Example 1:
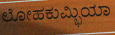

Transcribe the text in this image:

ಲೋಹಕುಮ್ಭಿಯಾ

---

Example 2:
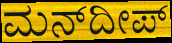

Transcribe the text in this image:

ಮನ್‍ದೀಪ್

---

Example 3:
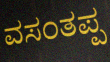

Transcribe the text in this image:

ವಸಂತಪ್ಪ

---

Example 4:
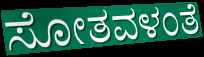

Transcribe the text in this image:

ಸೋತವಳಂತೆ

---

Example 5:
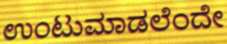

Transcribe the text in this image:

ಉಂಟುಮಾಡಲೆಂದೇ